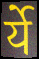
र्ये